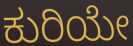
ಕುರಿಯೇ